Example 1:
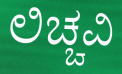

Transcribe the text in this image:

ಲಿಚ್ಚವಿ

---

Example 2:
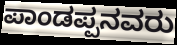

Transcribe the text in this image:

ಪಾಂಡಪ್ಪನವರು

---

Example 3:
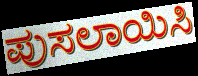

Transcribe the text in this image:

ಪುಸಲಾಯಿಸಿ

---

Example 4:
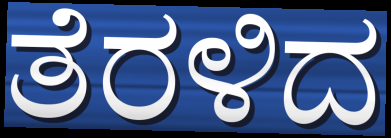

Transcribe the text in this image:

ತೆರಳಿದ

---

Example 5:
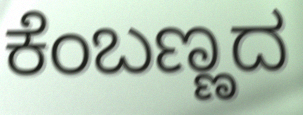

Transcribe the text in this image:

ಕೆಂಬಣ್ಣದ